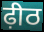
ढ़ीठ